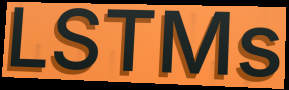
LSTMs